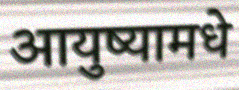
आयुष्यामधे